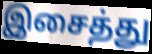
இசைத்து